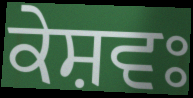
ਕੇਸ਼ਵਃ